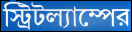
স্ট্রিটল্যাম্পের